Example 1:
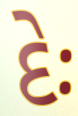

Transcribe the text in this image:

દેઃ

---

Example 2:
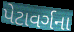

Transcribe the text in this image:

પેટાવર્ગના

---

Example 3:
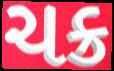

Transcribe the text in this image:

ચક્ર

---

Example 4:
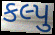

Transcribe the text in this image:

કલ્પુ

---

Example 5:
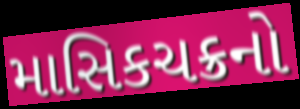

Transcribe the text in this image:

માસિકચક્રનો